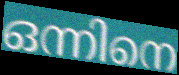
ഒന്നിനെ